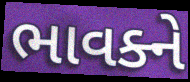
ભાવક્ને